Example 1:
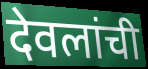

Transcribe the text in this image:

देवलांची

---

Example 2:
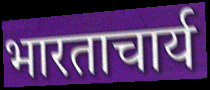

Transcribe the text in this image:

भारताचार्य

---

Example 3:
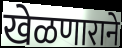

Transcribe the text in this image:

खेळणाराने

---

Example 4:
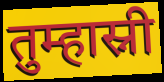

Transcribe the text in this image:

तुम्हास्नी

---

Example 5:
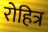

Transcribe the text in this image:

रोहित्र